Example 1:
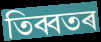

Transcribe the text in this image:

তিব্বতৰ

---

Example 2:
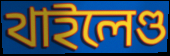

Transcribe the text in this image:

থাইলেণ্ড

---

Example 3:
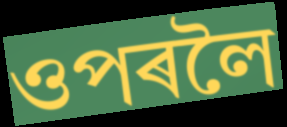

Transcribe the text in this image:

ওপৰলৈ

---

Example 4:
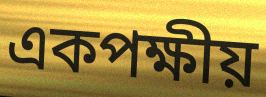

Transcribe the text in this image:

একপক্ষীয়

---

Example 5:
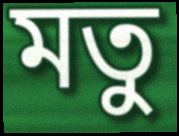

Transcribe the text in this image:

মতু